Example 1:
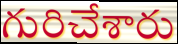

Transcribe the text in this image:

గురిచేశారు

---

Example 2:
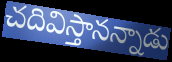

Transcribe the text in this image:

చదివిస్తానన్నాడు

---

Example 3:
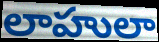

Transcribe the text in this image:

లాహులా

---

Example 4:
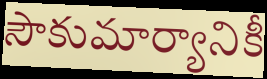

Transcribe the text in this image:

సౌకుమార్యానికీ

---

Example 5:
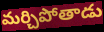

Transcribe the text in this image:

మర్చిపోతాడు